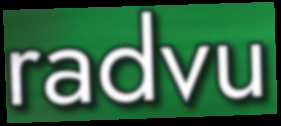
radvu